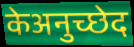
केअनुच्छेद